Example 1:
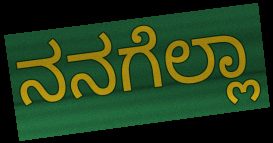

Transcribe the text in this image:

ನನಗೆಲ್ಲಾ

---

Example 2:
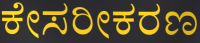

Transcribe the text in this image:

ಕೇಸರೀಕರಣ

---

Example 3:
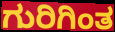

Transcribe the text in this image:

ಗುರಿಗಿಂತ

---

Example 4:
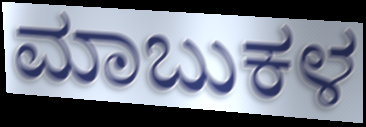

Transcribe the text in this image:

ಮಾಬುಕಳ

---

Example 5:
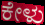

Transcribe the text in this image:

ಕೇಳು